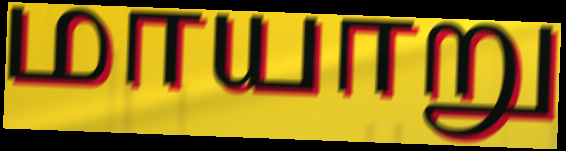
மாயாறு